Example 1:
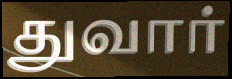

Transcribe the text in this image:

துவார்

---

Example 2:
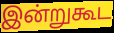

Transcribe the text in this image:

இன்றுகூட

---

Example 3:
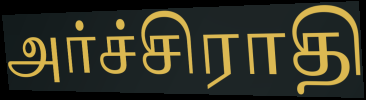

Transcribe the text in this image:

அர்ச்சிராதி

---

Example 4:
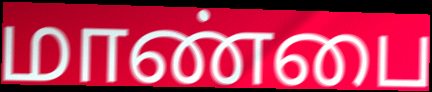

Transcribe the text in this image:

மாண்பை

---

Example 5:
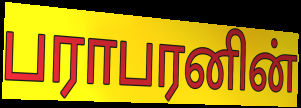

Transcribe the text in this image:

பராபரனின்